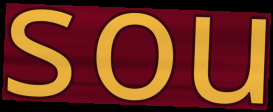
sou